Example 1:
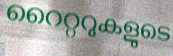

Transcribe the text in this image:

റൈറ്ററുകളുടെ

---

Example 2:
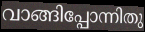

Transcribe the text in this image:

വാങ്ങിപ്പോന്നിതു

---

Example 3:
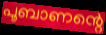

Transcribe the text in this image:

പൂബാണന്റെ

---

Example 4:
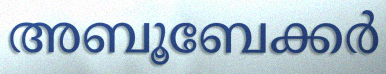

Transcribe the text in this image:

അബൂബേക്കർ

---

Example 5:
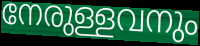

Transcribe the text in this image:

നേരുള്ളവനും